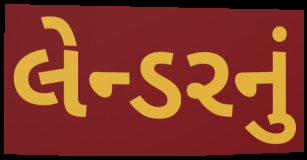
લેન્ડરનું